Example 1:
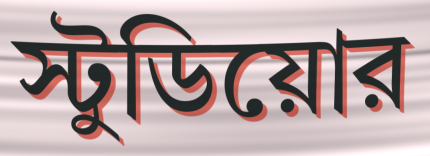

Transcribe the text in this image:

স্টুডিয়োর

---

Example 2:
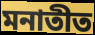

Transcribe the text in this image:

মনাতীত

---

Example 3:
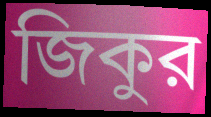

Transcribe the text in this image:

জিকুর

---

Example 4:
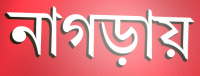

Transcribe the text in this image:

নাগড়ায়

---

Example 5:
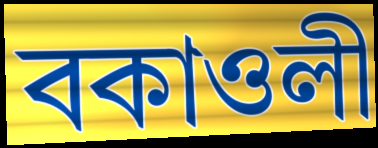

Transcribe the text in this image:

বকাওলী